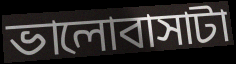
ভালোবাসাটা